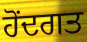
ਹੋਂਦਗਤ